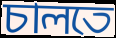
চালতে